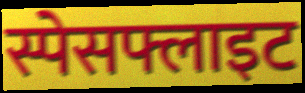
स्पेसफ्लाइट